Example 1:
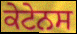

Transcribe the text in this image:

ਕੇਟੇਨਸ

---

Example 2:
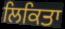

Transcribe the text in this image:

ਲਿਕਿਤਾ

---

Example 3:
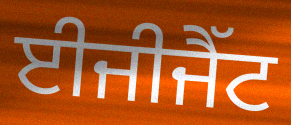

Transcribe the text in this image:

ਈਜੀਜੈੱਟ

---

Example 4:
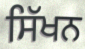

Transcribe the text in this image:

ਸਿੱਖਨ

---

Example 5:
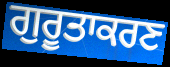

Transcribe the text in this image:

ਗੁਰੂਤਾਕਰਣ